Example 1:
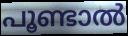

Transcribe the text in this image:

പൂണ്ടാൽ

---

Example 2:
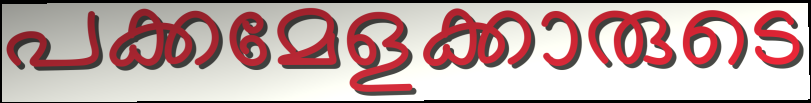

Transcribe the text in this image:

പക്കമേളക്കാരുടെ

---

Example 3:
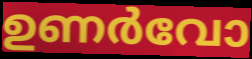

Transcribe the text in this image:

ഉണർവോ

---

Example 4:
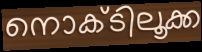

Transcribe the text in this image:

നൊക്ടിലൂക്ക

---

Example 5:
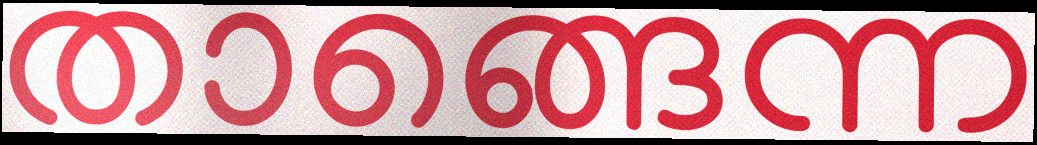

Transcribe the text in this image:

താങ്ങെന്ന